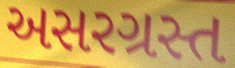
અસરગ્રસ્ત